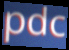
pdc